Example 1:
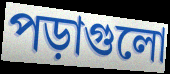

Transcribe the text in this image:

পড়াগুলো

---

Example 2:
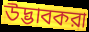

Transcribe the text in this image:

উদ্ভাবকরা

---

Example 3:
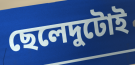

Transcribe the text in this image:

ছেলেদুটোই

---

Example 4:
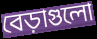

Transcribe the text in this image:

বেড়াগুলো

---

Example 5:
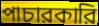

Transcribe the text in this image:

পাচারকারি